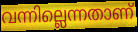
വന്നില്ലെന്നതാണ്